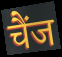
चैंज